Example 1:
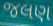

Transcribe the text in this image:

જલણ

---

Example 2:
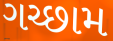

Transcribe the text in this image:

ગચ્છામ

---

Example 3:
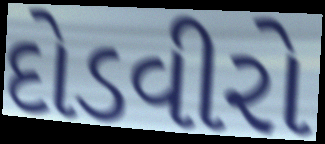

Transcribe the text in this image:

દોડવીરો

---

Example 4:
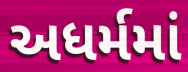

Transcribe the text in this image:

અધર્મમાં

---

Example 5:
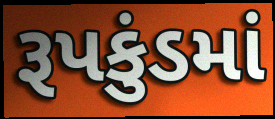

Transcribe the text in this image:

રૂપકુંડમાં